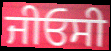
ਜੀਓਸੀ